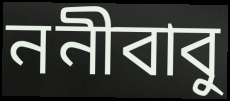
ননীবাবু